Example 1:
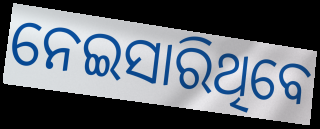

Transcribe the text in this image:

ନେଇସାରିଥିବେ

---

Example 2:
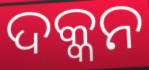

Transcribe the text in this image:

ଦକ୍କନ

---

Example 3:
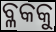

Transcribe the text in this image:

ବ୍ଳକକୁ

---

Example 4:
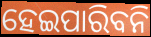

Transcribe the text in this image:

ହେଇପାରିବନି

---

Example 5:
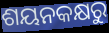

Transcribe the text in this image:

ଶୟନକକ୍ଷରୁ